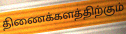
திணைக்களத்திற்கும்